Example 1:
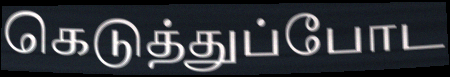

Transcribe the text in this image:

கெடுத்துப்போட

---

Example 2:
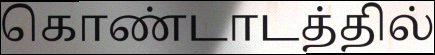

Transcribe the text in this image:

கொண்டாடத்தில்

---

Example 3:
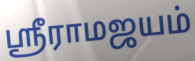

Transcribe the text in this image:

ஸ்ரீராமஜயம்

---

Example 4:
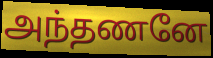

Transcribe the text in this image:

அந்தணனே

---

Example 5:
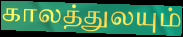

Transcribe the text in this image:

காலத்துலயும்